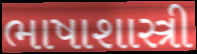
ભાષાશાસ્ત્રી